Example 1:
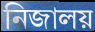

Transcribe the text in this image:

নিজালয়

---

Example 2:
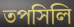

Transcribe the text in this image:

তপসিলি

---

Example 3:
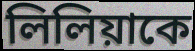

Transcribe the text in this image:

লিলিয়াকে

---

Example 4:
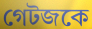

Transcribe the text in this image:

গেটজকে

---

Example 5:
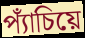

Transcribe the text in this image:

প্যাঁচিয়ে